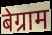
बेग्राम